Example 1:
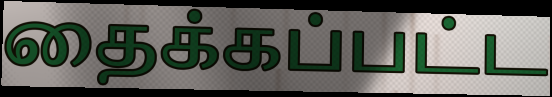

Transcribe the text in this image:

தைக்கப்பட்ட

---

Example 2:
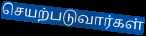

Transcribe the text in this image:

செயற்படுவார்கள்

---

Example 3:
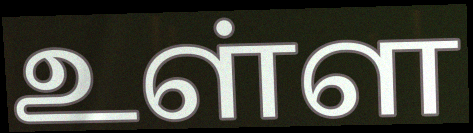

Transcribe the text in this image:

உள்ள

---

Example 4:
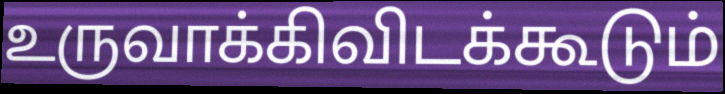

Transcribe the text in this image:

உருவாக்கிவிடக்கூடும்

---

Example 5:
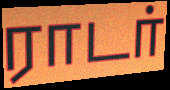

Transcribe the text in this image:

ராடர்